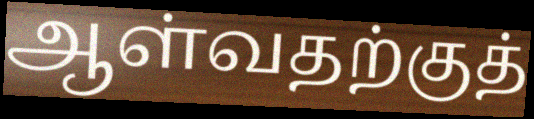
ஆள்வதற்குத்